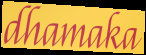
dhamaka